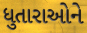
ધુતારાઓને